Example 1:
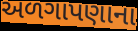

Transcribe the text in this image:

અળગાપણાના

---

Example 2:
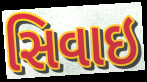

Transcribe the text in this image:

સિવાઇ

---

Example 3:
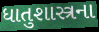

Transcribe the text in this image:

ધાતુશાસ્ત્રના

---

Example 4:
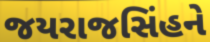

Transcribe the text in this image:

જયરાજસિંહને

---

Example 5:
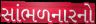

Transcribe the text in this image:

સાંભળનારનો